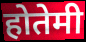
होतेमी